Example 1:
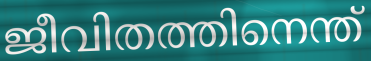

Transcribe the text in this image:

ജീവിതത്തിനെന്ത്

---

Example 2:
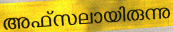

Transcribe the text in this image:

അഫ്സലായിരുന്നു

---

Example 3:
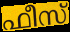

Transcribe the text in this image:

ഫീസ്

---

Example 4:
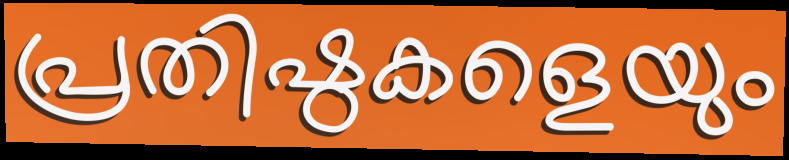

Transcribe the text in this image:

പ്രതിഷ്ഠകളെയും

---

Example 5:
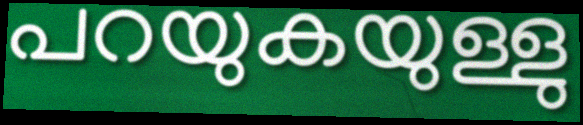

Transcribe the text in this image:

പറയുകയുള്ളു